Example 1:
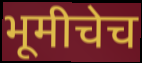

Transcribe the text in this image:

भूमीचेच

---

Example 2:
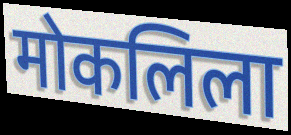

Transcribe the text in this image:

मोकलिला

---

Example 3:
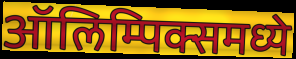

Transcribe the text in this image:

ऑलिम्पिक्समध्ये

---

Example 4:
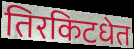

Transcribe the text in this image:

तिरकिटधेत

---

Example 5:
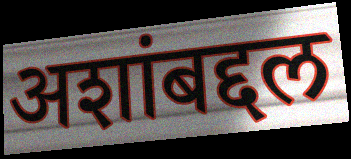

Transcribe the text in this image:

अशांबद्दल